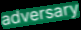
adversary